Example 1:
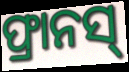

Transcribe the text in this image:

ଫ୍ରାନସ୍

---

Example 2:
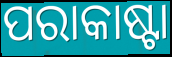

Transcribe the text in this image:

ପରାକାଷ୍ଟା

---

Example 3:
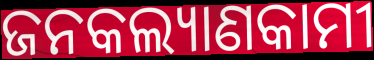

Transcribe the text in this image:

ଜନକଲ୍ୟାଣକାମୀ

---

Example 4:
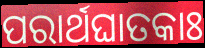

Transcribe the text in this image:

ପରାର୍ଥଘାତକାଃ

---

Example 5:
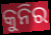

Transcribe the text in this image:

କୁନିର